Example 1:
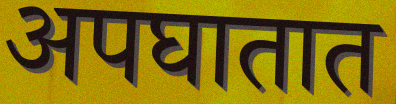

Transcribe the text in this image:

अपघातात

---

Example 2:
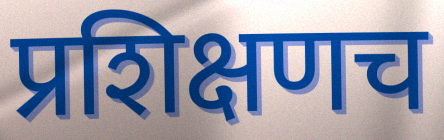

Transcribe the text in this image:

प्रशिक्षणच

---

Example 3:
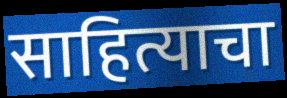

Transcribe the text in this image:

साहित्याचा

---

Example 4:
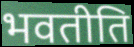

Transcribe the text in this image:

भवतीति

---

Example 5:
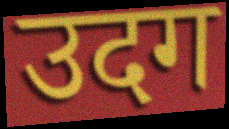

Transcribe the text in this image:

उदग